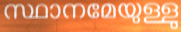
സ്ഥാനമേയുള്ളു